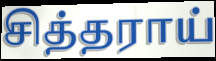
சித்தராய்